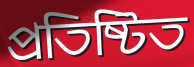
প্রতিষ্টিত